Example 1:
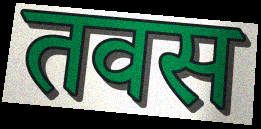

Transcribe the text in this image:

तवस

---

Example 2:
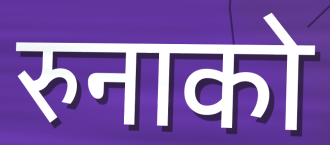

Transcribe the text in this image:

रुनाको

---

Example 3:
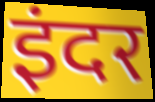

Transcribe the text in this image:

इंदर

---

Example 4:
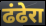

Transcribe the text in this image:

ढंढेरा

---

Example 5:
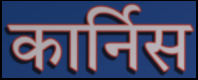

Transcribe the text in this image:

कार्निस